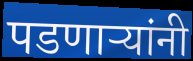
पडणाऱ्यांनी